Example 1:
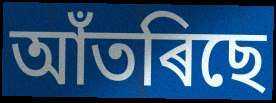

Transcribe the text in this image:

আঁতৰিছে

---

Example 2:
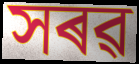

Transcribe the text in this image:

সৰৱ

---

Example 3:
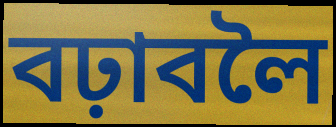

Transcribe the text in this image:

বঢ়াবলৈ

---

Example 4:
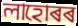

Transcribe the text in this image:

লাহোৰৰ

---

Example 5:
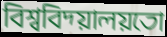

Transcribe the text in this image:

বিশ্ববিদ্য়ালয়তো